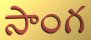
సాంగ